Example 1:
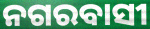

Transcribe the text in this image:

ନଗରବାସୀ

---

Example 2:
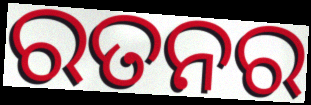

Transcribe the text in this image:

ରତନର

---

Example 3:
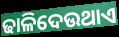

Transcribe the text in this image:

ଢାଳିଦେଉଥାଏ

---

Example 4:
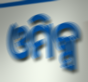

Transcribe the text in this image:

ଓମିକ୍ସ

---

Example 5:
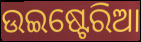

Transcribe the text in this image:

ଉଇଷ୍ଟେରିଆ